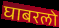
घाबरलो